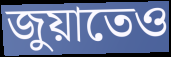
জুয়াতেও